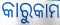
କାରୁକାମ